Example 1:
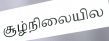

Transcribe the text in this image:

சூழ்நிலையில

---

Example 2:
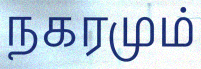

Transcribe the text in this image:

நகரமும்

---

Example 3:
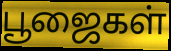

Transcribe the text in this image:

பூஜைகள்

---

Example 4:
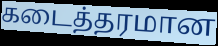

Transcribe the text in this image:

கடைத்தரமான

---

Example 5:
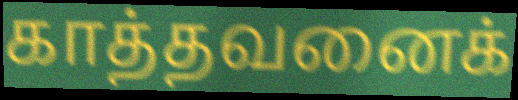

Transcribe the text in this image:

காத்தவனைக்